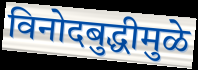
विनोदबुद्धीमुळे